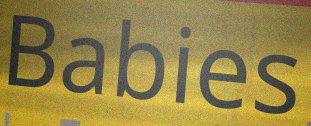
Babies